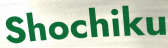
Shochiku